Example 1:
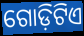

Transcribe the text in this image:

ଗୋଡ଼ିଟିଏ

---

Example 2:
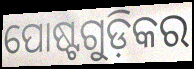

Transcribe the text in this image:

ପୋଷ୍ଟଗୁଡ଼ିକର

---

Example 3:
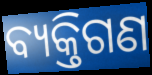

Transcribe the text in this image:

ବ୍ଯକ୍ତିଗଣ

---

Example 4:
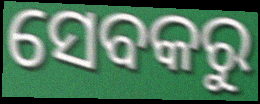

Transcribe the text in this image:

ସେବକରୁ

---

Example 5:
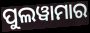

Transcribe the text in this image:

ପୁଲୱାମାର